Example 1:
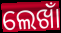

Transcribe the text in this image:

ଲେଖାଁ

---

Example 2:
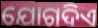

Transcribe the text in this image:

ଯୋଗଦିଏ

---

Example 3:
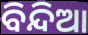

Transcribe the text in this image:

ବିନ୍ଦିଆ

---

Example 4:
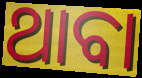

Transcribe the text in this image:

ଥାବା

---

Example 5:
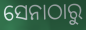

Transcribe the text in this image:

ସେନାଠାରୁ